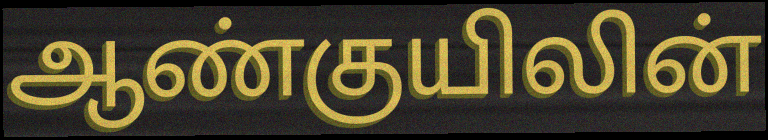
ஆண்குயிலின்